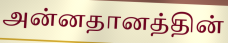
அன்னதானத்தின்